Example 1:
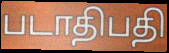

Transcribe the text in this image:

படாதிபதி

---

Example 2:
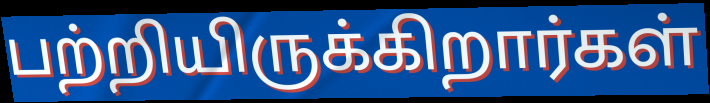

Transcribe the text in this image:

பற்றியிருக்கிறார்கள்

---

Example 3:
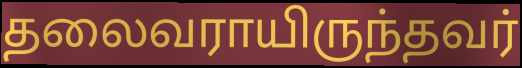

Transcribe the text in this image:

தலைவராயிருந்தவர்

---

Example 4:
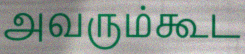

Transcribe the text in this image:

அவரும்கூட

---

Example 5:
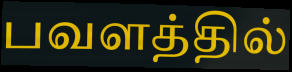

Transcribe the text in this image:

பவளத்தில்